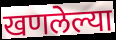
खणलेल्या